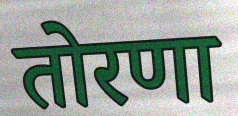
तोरणा